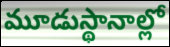
మూడుస్థానాల్లో